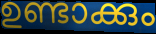
ഉണ്ടാക്കും